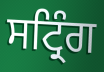
ਸਟ੍ਰਿੰਗ